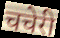
चचेरी